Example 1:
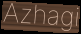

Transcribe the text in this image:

Azhagi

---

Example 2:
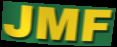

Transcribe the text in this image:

JMF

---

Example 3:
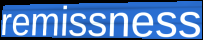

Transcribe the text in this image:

remissness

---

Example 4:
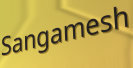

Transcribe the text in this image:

Sangamesh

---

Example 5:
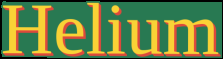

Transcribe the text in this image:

Helium